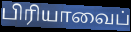
பிரியாவைப்